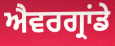
ਐਵਰਗ੍ਰਾਂਡੇ